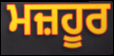
ਮਜ਼ਹੂਰ